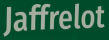
Jaffrelot